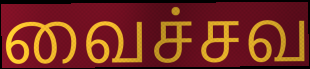
வைச்சவ